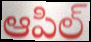
ఆపిల్